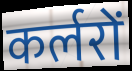
कर्लरों